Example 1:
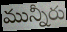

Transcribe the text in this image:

మున్నీరు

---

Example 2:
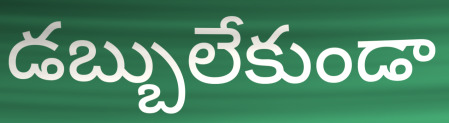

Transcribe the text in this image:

డబ్బులేకుండా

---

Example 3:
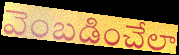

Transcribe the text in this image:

వెంబడించేలా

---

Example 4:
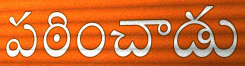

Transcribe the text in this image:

పఠించాడు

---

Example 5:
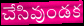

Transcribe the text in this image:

చేసివుండక